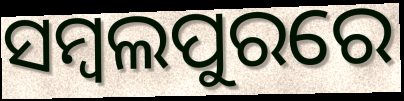
ସମ୍ବଲପୁରରେ